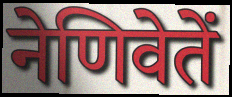
नेणिवेतें